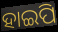
ହାଇପି